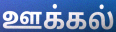
ஊக்கல்